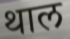
थाल